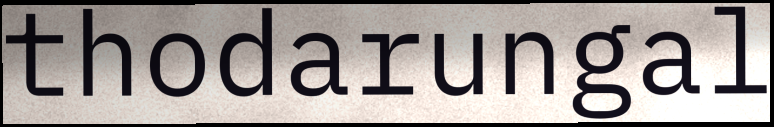
thodarungal